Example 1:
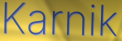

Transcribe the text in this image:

Karnik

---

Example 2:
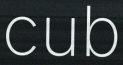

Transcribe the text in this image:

cub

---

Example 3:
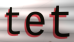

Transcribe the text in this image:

tet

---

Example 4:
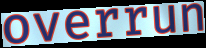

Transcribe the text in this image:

overrun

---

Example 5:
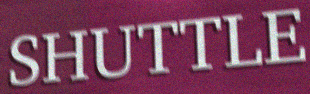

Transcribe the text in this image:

SHUTTLE